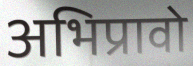
अभिप्रावो